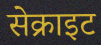
सेक्राइट